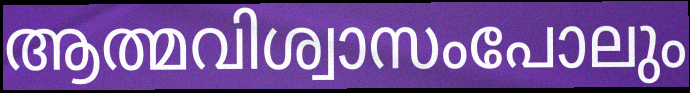
ആത്മവിശ്വാസംപോലും